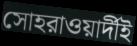
সোহরাওয়ার্দীই